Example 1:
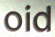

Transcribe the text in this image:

oid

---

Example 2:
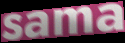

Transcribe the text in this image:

sama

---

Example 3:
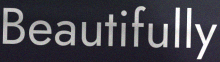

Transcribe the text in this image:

Beautifully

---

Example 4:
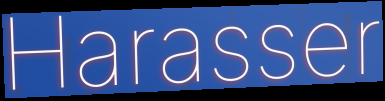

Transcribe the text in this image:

Harasser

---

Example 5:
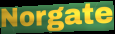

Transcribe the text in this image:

Norgate